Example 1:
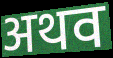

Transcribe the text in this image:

अथव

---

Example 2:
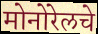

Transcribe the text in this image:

मोनोरेलचे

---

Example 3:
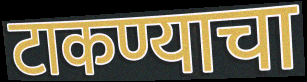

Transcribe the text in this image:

टाकण्याचा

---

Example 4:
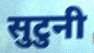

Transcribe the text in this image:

सुटुनी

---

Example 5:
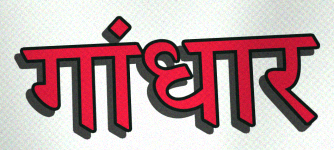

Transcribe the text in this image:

गांधार